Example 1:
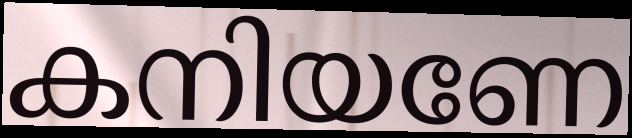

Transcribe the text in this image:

കനിയണേ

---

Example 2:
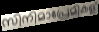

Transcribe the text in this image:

സിനിമാപ്രേമികള്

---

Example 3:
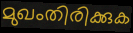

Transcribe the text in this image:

മുഖംതിരിക്കുക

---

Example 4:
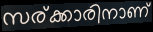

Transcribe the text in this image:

സര്ക്കാരിനാണ്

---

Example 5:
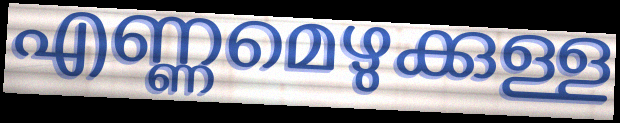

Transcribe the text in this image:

എണ്ണമെഴുക്കുള്ള